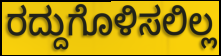
ರದ್ದುಗೊಳಿಸಲಿಲ್ಲ